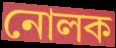
নোলক